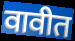
वावीत